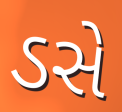
ડસે